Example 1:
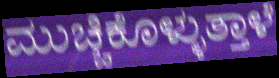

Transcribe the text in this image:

ಮುಚ್ಚಿಕೊಳ್ಳುತ್ತಾಳೆ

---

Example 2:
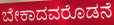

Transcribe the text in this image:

ಬೇಕಾದವರೊಡನೆ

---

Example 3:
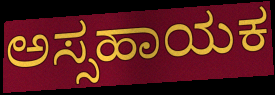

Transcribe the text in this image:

ಅಸ್ಸಹಾಯಕ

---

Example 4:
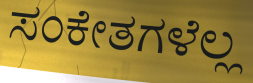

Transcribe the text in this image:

ಸಂಕೇತಗಳೆಲ್ಲ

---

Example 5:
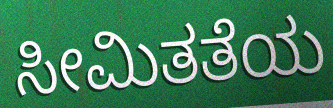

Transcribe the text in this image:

ಸೀಮಿತತೆಯ